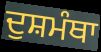
ਦੁਸ਼ਮੰਥਾ